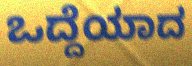
ಒದ್ದೆಯಾದ